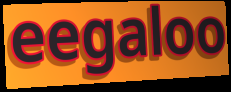
eegaloo